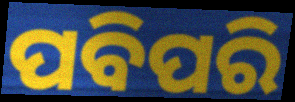
ପବିପରି